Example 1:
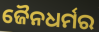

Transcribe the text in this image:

ଜୈନଧର୍ମର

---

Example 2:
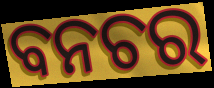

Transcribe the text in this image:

ବନଚର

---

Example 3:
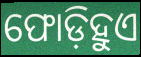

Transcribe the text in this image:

ଫୋଡ଼ିହୁଏ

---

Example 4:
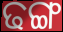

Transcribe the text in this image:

ଢଙ୍ଗ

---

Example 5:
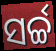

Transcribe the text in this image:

ସର୍ଚ୍ଚ